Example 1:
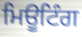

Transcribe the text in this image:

ਮਿਊਟਿੰਗ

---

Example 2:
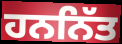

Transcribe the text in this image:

ਹਨਨਿੱਤ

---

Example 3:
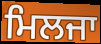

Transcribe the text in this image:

ਮਿਲਜਾ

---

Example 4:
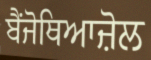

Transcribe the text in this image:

ਬੈਂਜੋਥਿਆਜ਼ੋਲ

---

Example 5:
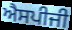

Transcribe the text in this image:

ਐਸਪੀਜੀ